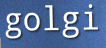
golgi